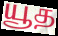
யூத